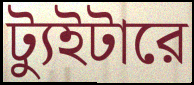
ট্যুইটারে